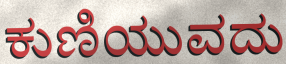
ಕುಣಿಯುವದು